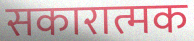
सकारात्‍मक